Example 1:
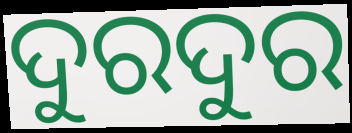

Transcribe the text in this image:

ଦୁରଦୁର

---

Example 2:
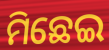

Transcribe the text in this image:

ମିଛେଇ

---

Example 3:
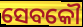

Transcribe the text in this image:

ସେବକୌ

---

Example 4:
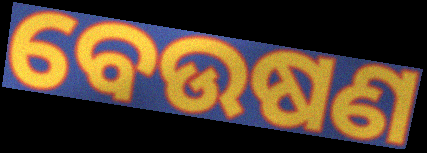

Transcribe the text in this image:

ବେଉଷଣ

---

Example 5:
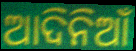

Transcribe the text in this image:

ଆଦିନିଆଁ